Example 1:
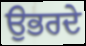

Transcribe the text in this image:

ਉਭਰਦੇ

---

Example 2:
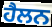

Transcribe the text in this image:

ਹੈਲਨ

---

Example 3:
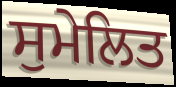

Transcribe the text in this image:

ਸੁਮੇਲਿਤ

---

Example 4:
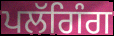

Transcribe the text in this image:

ਪਲੱਗਿੰਗ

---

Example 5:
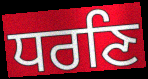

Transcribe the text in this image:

ਧਰਣਿ